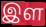
இள